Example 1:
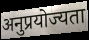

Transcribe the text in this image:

अनुप्रयोज्यता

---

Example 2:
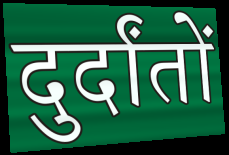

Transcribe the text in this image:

दुर्दांतों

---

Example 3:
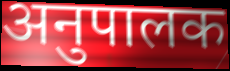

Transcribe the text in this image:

अनुपालक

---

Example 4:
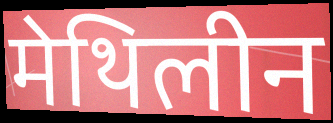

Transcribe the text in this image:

मेथिलीन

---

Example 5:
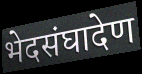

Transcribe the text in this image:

भेदसंघादेण